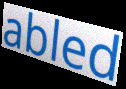
abled